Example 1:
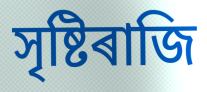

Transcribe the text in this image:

সৃষ্টিৰাজি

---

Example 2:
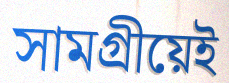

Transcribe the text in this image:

সামগ্ৰীয়েই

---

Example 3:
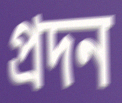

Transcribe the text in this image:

প্ৰদন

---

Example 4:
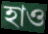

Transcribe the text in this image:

হাও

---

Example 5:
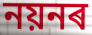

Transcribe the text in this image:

নয়নৰ